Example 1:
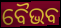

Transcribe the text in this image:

ବୈଭବ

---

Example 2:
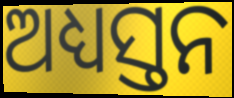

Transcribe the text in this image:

ଅଧ୍ୟସ୍ତନ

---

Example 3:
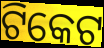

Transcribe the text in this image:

ଟିକେଟ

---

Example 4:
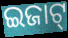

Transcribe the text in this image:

ଇଜାଟ୍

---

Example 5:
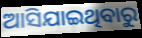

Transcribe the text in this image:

ଆସିଯାଇଥିବାରୁ